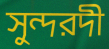
সুন্দরদী